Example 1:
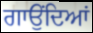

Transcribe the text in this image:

ਗਾਉਂਦਿਆਂ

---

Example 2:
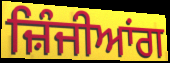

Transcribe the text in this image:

ਜ਼ਿੰਜੀਆਂਗ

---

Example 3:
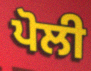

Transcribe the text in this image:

ਪੋਲੀ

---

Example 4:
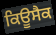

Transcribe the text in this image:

ਕਿਊਸੈਕ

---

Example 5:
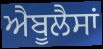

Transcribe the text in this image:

ਐਬੂਲੈਸਾਂ